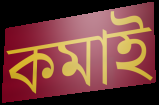
কমাই